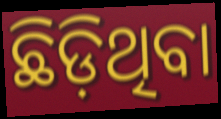
ଛିଡ଼ିଥିବା